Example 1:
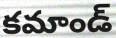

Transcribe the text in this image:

కమాండ్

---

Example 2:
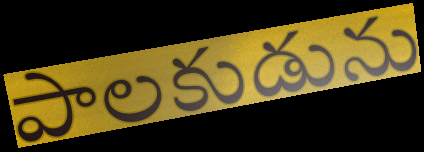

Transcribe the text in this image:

పాలకుడును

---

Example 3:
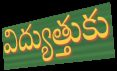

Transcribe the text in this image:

విద్యుత్తుకు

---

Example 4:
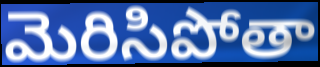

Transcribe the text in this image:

మెరిసిపోతా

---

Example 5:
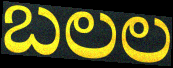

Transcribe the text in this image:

బలల